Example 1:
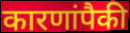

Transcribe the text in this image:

कारणांपैकी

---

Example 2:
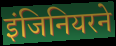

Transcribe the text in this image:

इंजिनियरने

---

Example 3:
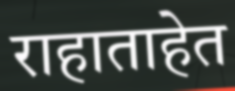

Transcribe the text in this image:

राहाताहेत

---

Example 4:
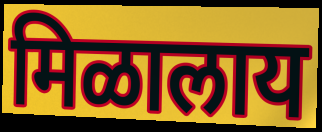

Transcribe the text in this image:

मिळालाय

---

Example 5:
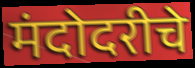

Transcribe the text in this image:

मंदोदरीचे